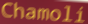
Chamoli